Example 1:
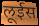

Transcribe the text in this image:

लूईस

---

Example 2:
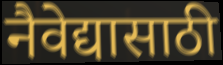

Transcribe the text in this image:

नैवेद्यासाठी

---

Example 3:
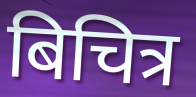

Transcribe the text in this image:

बिचित्र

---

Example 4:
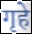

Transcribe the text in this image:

गृहे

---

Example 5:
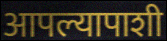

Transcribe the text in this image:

आपल्यापाशी